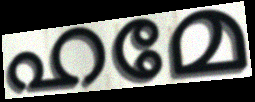
ഹമേ